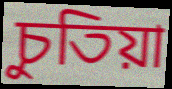
চুতিয়া